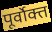
पूर्वोक्त